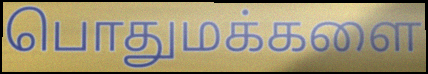
பொதுமக்களை